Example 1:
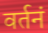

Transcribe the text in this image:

वर्तनं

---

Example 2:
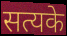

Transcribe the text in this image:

सत्यके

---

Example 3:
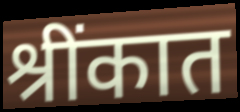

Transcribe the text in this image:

श्रींकात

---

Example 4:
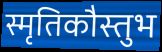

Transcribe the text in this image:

स्मृतिकौस्तुभ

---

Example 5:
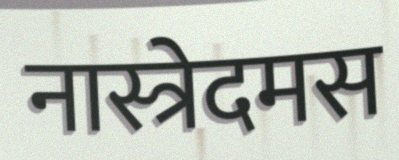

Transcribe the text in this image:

नास्त्रेदमस